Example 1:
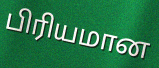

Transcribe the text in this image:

பிரியமான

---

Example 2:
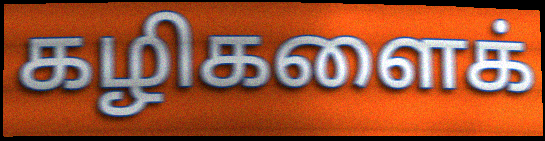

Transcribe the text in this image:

கழிகளைக்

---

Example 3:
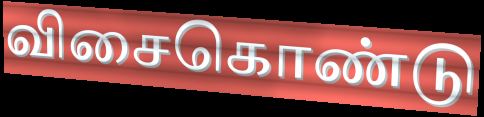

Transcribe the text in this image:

விசைகொண்டு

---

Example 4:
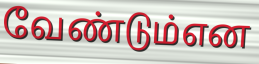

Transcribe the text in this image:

வேண்டும்என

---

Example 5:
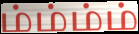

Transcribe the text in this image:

ம்ம்ம்ம்